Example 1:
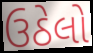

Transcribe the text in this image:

ઉઠેલો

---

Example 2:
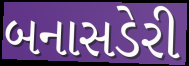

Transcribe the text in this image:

બનાસડેરી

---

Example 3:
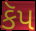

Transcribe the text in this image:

કૅપ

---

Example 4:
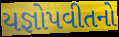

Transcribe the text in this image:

યજ્ઞોપવીતનો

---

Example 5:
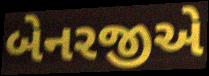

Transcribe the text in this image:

બેનરજીએ